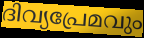
ദിവ്യപ്രേമവും